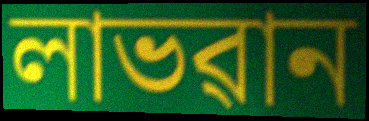
লাভৱান